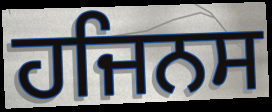
ਹਜਿਨਸ